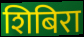
शिबिरा